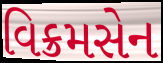
વિક્રમસેન